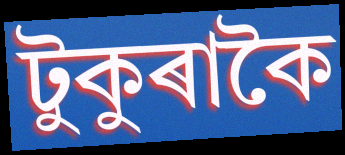
টুকুৰাকৈ